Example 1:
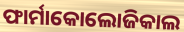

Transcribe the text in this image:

ଫାର୍ମାକୋଲୋଜିକାଲ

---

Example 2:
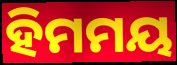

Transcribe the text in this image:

ହିମମୟ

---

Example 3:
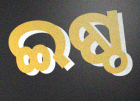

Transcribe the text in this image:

ଇଷ୍ଠ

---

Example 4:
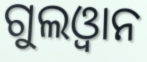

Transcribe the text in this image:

ଗୁଲଓ୍ୱାନ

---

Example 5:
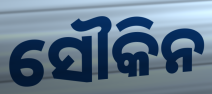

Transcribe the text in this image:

ସୌକିନ